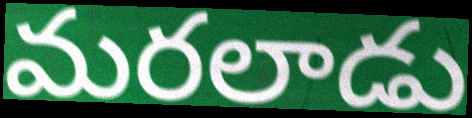
మరలాడు